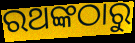
ରଥଙ୍କଠାରୁ